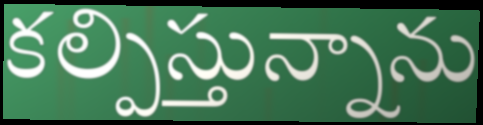
కల్పిస్తున్నాను